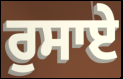
ਰੁਸਾਏ